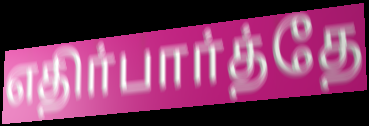
எதிர்பார்த்தே